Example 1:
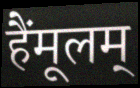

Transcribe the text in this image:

हैंमूलम्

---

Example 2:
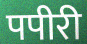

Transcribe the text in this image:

पपीरी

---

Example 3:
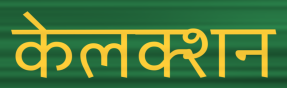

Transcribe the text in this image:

केलक्शन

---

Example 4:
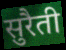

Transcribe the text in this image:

सुरैती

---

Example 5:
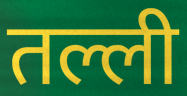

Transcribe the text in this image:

तल्ली